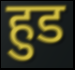
हुड